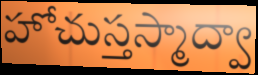
హోచుస్తస్మాద్వా